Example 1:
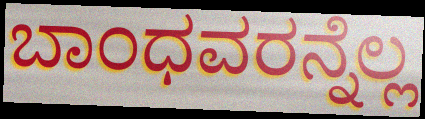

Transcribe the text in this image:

ಬಾಂಧವರನ್ನೆಲ್ಲ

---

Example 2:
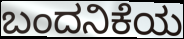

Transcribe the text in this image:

ಬಂದನಿಕೆಯ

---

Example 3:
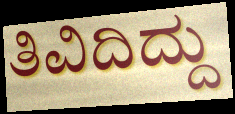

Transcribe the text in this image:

ತಿವಿದಿದ್ದು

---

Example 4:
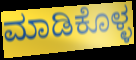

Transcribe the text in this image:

ಮಾಡಿಕೊಳ್ಳ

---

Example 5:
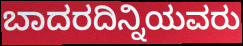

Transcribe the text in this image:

ಬಾದರದಿನ್ನಿಯವರು